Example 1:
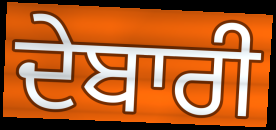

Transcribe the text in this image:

ਦੇਬਾਰੀ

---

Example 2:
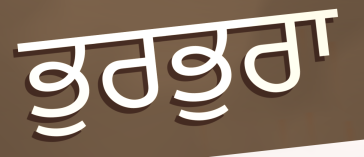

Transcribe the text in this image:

ਭੁਰਭੁਰਾ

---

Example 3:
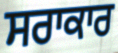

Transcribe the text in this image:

ਸਰਾਕਾਰ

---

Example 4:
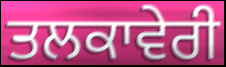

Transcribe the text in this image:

ਤਲਕਾਵੇਰੀ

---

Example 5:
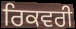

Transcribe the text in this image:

ਰਿਕਵਰੀ